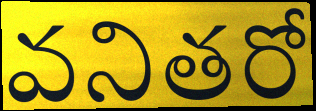
వనితరో